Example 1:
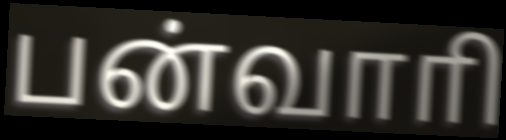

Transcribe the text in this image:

பன்வாரி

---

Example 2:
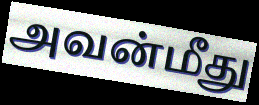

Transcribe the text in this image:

அவன்மீது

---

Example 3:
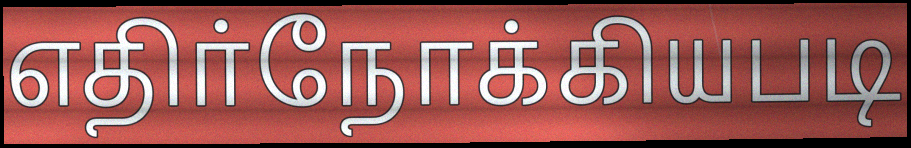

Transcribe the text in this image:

எதிர்நோக்கியபடி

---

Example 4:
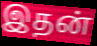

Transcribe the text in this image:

இதன்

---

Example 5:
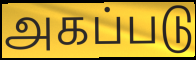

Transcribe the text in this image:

அகப்படு